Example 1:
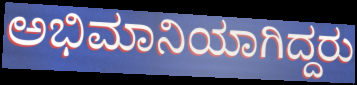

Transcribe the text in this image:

ಅಭಿಮಾನಿಯಾಗಿದ್ದರು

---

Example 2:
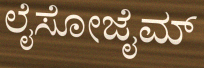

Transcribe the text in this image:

ಲೈಸೋಜೈಮ್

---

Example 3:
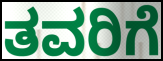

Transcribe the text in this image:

ತವರಿಗೆ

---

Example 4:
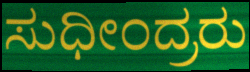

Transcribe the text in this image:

ಸುಧೀಂದ್ರರು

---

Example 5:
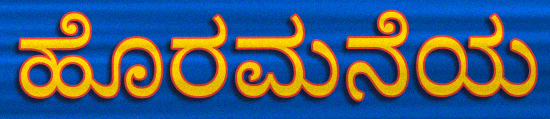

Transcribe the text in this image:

ಹೊರಮನೆಯ